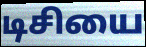
டிசியை